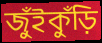
জুঁইকুঁড়ি